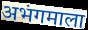
अभंगमाला